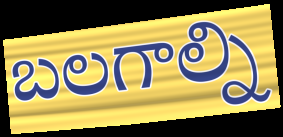
బలగాల్ని